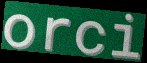
orci